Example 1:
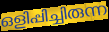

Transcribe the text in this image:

ഒളിപ്പിച്ചിരുന്ന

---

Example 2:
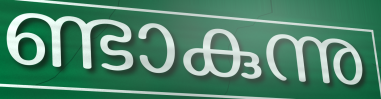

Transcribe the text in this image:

ണ്ടാകുന്നു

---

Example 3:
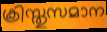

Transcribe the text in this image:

ക്രിസ്തുസമാന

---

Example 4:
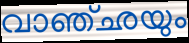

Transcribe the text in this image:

വാഞ്ഛയും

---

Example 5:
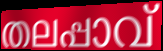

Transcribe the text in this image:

തലപ്പാവ്